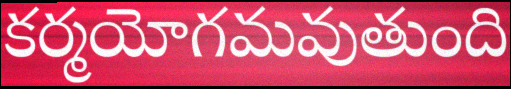
కర్మయోగమవుతుంది